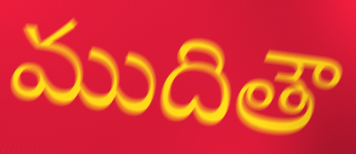
ముదితౌ